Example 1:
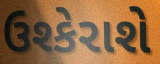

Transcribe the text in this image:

ઉશ્કેરાશે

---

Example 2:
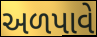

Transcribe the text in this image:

અળપાવે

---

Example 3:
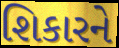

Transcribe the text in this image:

શિકારને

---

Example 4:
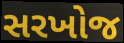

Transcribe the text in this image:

સરખોજ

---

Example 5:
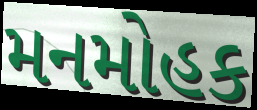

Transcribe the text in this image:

મનમોહક